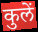
कुलें